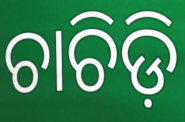
ଚାଚିଡ଼ି